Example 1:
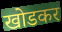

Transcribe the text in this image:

खोडकर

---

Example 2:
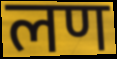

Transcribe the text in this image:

लण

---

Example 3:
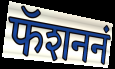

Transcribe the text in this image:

फॅशननं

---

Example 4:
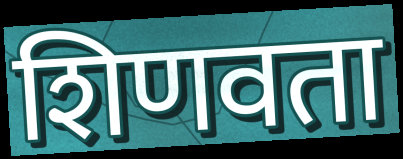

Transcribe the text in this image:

शिणवता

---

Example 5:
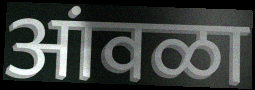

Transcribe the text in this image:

आंवळा